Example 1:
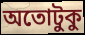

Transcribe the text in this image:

অতোটুকু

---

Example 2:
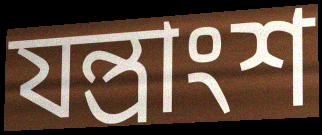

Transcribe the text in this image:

যন্ত্রাংশ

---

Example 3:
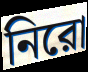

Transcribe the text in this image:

নিরো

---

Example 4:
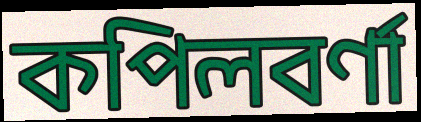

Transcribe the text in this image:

কপিলবর্ণা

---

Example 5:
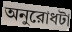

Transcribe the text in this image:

অনুরোধটা